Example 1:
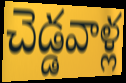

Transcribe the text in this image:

చెడ్డవాళ్ల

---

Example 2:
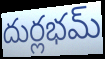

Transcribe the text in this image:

దుర్లభమ్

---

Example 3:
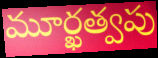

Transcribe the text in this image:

మూర్ఖత్వపు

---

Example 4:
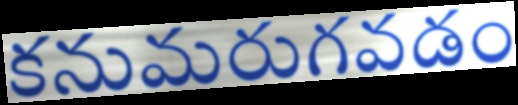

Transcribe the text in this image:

కనుమరుగవడం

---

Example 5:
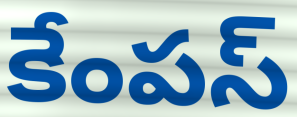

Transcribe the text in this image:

కేంపస్